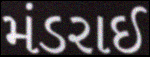
મંડરાઈ